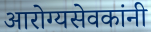
आरोग्यसेवकांनी